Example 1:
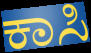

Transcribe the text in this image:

ಕಾಸಿ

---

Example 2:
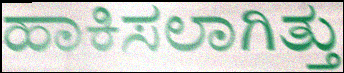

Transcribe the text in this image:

ಹಾಕಿಸಲಾಗಿತ್ತು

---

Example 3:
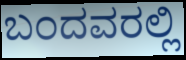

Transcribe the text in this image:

ಬಂದವರಲ್ಲಿ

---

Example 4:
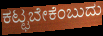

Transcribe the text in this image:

ಕಟ್ಟಬೇಕೆಂಬುದು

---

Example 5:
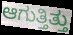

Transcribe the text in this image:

ಆಗುತ್ತಿತ್ತು